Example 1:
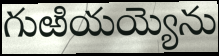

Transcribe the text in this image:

గుఱియయ్యెను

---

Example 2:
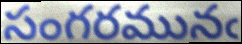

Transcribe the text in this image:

సంగరమునఁ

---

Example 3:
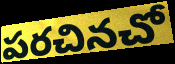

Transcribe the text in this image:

పరచినచో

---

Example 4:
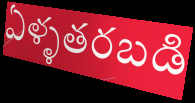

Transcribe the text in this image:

ఏళ్ళతరబడి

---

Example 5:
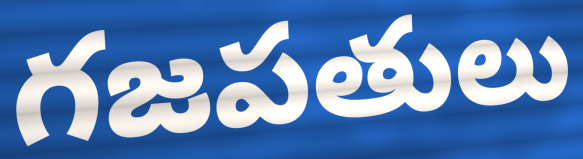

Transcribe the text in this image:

గజపతులు